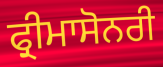
ਫ੍ਰੀਮਾਸੋਨਰੀ